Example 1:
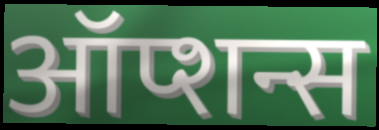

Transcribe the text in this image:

ऑप्शन्स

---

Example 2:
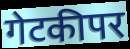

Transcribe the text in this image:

गेटकीपर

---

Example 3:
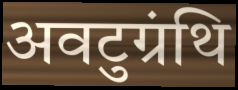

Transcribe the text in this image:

अवटुग्रंथि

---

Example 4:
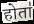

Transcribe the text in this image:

होता॑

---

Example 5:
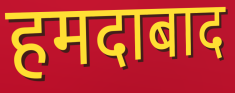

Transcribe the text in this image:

हमदाबाद